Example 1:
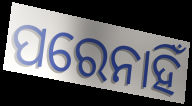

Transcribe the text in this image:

ପରେନାହିଁ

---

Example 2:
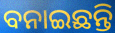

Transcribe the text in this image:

ବନାଇଛନ୍ତି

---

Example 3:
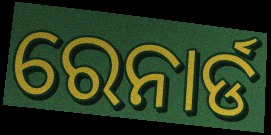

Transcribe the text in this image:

ରେନାର୍ଡ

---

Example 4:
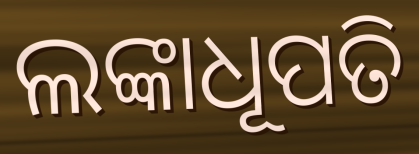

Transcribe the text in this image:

ଲଙ୍କାଧୂପତି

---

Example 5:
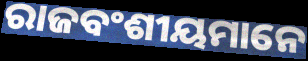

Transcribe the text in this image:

ରାଜବଂଶୀୟମାନେ